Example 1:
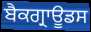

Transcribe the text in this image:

ਬੈਕਗ੍ਰਾਊਡਸ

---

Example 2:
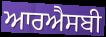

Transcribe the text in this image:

ਆਰਐਸਬੀ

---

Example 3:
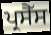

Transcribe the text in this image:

ਪ੍ਰਸੈੱਸ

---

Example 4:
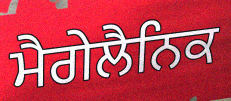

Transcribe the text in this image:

ਮੈਗੇਲੈਨਿਕ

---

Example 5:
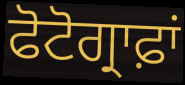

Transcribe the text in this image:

ਫੋਟੋਗ੍ਰਾਫ਼ਾਂ